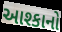
આશ્કાનો